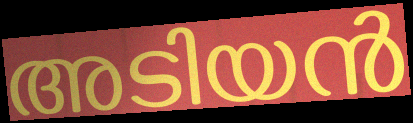
അടിയൻ